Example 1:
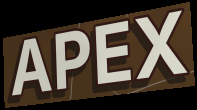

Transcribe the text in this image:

APEX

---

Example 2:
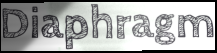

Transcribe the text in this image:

Diaphragm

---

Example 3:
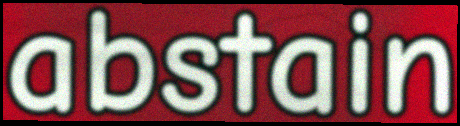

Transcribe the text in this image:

abstain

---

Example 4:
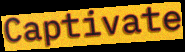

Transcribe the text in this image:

Captivate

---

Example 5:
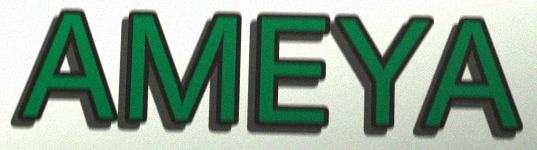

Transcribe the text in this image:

AMEYA